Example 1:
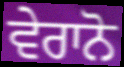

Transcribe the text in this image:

ਵੇਰਾਨੋ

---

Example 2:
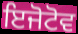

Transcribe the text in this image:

ਇਜੋਟੋਵ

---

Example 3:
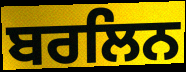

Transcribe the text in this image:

ਬਰਲਿਨ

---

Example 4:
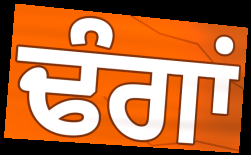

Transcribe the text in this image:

ਢੰਗਾਂ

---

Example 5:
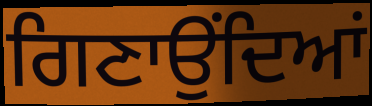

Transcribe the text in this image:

ਗਿਣਾਉਂਦਿਆਂ